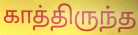
காத்திருந்த